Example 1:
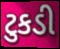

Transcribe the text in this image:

ટુકડી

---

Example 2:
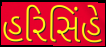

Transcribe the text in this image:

હરિસિંહે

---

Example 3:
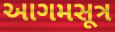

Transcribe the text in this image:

આગમસૂત્ર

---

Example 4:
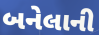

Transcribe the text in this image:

બનેલાની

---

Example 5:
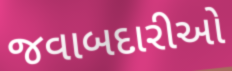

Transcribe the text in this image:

જવાબદારીઓ